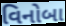
વિનોબા